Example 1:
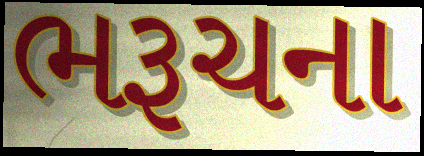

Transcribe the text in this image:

ભરૂચના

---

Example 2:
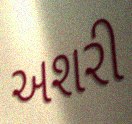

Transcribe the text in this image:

અશરી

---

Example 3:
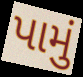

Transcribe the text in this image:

પામું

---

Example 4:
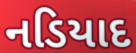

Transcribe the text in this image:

નડિયાદ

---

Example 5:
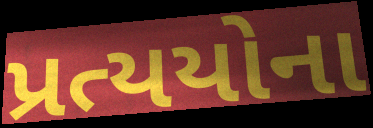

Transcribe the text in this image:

પ્રત્યયોના